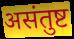
असंतुष्ट